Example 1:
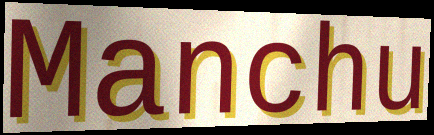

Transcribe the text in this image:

Manchu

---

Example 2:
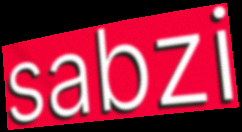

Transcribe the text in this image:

sabzi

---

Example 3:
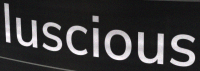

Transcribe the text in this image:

luscious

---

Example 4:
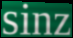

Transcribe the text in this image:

sinz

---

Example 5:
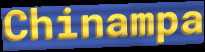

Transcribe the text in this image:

Chinampa